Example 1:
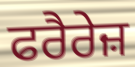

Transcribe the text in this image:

ਫਰੈਰੇਜ਼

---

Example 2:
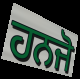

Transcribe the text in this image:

ਹਨਜੋ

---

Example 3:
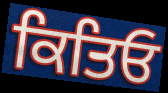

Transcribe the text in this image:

ਕਿਤਿਓ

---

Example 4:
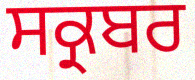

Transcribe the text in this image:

ਸਕ੍ਰਬਰ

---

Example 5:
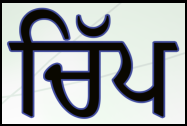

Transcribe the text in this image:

ਚਿੱਪ